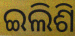
ଇଲିଶି